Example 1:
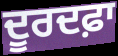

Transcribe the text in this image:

ਦੂਰਦਫ਼ਾ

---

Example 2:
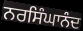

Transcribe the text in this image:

ਨਰਸਿੰਘਾਨੰਦ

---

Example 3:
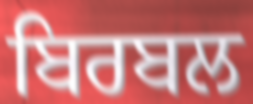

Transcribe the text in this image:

ਬਿਰਬਲ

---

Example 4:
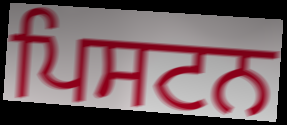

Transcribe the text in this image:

ਪਿਸਟਨ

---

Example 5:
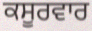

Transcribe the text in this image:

ਕਸੂਰਵਾਰ